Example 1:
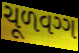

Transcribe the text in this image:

ચૂળવગ્ગ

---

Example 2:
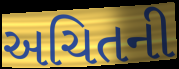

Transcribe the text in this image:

અચિતની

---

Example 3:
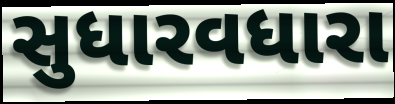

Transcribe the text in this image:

સુધારવધારા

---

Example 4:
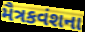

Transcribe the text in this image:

મૈત્રકવંશના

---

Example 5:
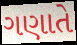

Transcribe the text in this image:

ગણાતે